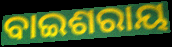
ବାଇଶରାୟ